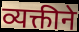
व्यक्तीने